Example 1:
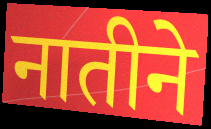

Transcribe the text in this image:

नातीने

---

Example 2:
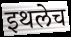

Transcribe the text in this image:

इथलेच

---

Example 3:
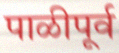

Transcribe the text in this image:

पाळीपूर्व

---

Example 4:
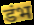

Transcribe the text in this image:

डंभ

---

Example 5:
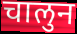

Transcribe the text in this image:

चालुन